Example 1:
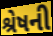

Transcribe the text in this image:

શ્રેષની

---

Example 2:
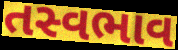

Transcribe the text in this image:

તસ્વભાવ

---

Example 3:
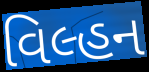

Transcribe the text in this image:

વિલ્હન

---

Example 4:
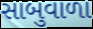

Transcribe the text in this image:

સાબુવાળા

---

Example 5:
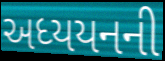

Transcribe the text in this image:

અધ્યયનની